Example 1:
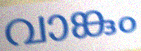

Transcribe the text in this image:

വാങ്കും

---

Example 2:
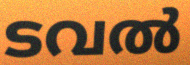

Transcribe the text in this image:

ടവൽ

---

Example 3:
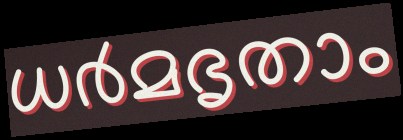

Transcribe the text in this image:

ധർമഭൃതാം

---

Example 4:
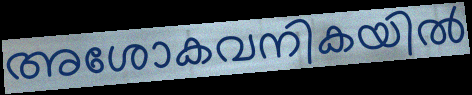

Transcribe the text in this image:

അശോകവനികയിൽ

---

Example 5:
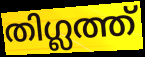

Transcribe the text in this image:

തിഗ്ലത്ത്